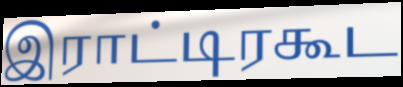
இராட்டிரகூட